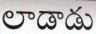
లాడాడు